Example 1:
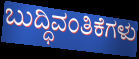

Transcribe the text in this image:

ಬುದ್ಧಿವಂತಿಕೆಗಳು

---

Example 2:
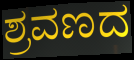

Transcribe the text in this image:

ಶ್ರವಣದ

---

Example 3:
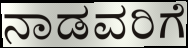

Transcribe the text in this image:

ನಾಡವರಿಗೆ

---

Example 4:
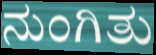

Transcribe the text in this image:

ನುಂಗಿತು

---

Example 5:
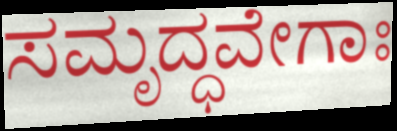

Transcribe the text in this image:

ಸಮೃದ್ಧವೇಗಾಃ